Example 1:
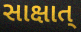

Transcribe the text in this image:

સાક્ષાત્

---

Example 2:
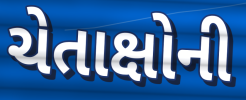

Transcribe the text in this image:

ચેતાક્ષોની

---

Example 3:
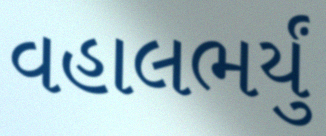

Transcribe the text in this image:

વહાલભર્યું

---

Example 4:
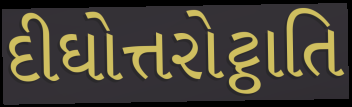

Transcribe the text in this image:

દીઘોત્તરોટ્ઠાતિ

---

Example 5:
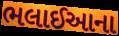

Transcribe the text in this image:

ભલાઈઆના